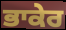
ਭਾਕੇਰ